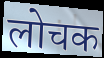
लोचक